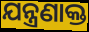
ଯନ୍ତ୍ରଣାକ୍ତ